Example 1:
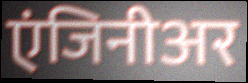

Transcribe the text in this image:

एंजिनीअर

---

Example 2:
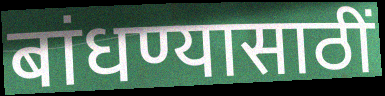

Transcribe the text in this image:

बांधण्यासाठीं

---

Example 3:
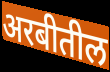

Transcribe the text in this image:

अरबीतील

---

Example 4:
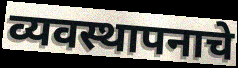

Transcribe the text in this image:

व्यवस्थापनाचे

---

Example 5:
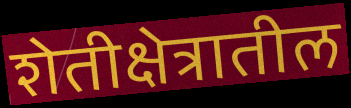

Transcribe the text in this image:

शेतीक्षेत्रातील